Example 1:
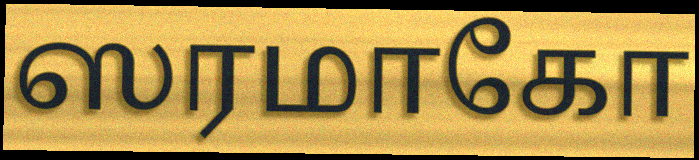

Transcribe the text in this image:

ஸரமாகோ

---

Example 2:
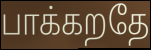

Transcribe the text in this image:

பாக்கறதே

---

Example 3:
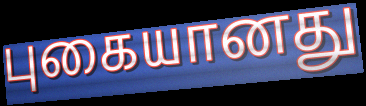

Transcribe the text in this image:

புகையானது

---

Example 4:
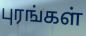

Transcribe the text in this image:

புரங்கள்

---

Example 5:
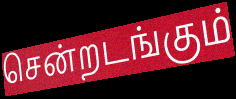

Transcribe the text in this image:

சென்றடங்கும்